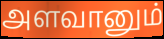
அளவானும்